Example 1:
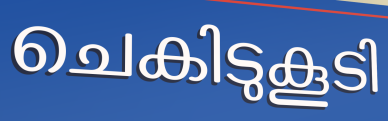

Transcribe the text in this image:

ചെകിടുകൂടി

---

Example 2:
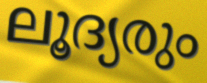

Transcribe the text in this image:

ലൂദ്യരും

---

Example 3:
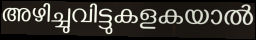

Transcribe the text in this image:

അഴിച്ചുവിട്ടുകളകയാൽ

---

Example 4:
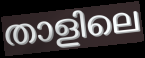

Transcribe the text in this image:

താളിലെ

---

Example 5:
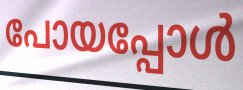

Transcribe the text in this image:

പോയപ്പോൾ